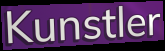
Kunstler